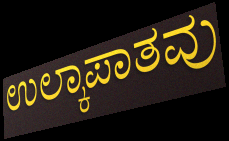
ಉಲ್ಕಾಪಾತವು